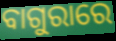
ବାଗୁରାରେ